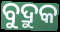
ବୁଦ୍ରୁକ